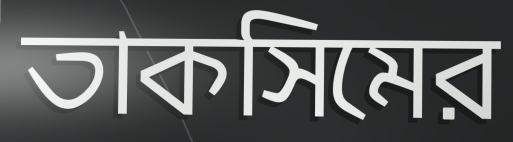
তাকসিমের